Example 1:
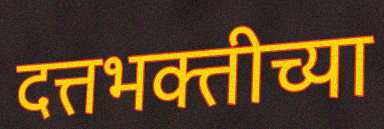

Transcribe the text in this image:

दत्तभक्तीच्या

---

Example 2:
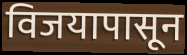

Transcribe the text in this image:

विजयापासून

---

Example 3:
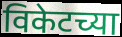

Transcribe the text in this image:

विकेटच्या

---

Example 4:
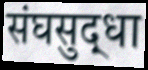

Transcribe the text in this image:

संघसुद्धा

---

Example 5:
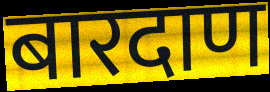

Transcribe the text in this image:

बारदाण